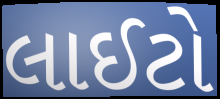
લાઈટો